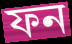
ফন